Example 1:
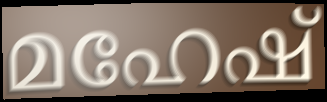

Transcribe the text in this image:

മഹേഷ്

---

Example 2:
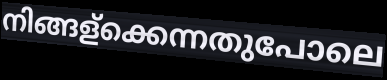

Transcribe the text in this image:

നിങ്ങള്ക്കെന്നതുപോലെ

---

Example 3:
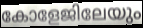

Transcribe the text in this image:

കോളേജിലേയും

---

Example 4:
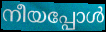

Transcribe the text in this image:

നീയപ്പോൾ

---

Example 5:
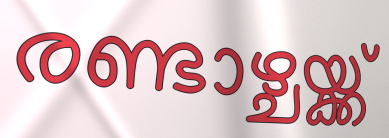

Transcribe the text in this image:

രണ്ടാഴ്ചയ്ക്ക്